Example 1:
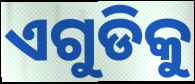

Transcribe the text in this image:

ଏଗୁଡିକୁ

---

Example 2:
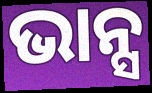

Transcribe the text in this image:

ଭାନ୍ସ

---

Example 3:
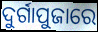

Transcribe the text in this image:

ଦୁର୍ଗାପୁଜାରେ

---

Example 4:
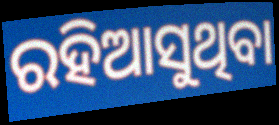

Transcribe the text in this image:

ରହିଆସୁଥିବା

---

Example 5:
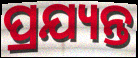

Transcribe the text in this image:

ପ୍ରଯ୍ୟନ୍ତ